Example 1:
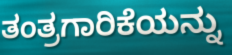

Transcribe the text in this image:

ತಂತ್ರಗಾರಿಕೆಯನ್ನು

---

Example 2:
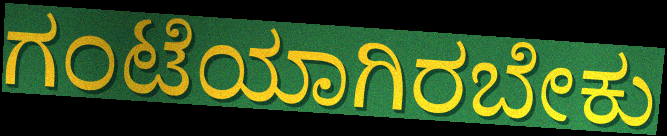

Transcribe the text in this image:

ಗಂಟೆಯಾಗಿರಬೇಕು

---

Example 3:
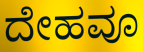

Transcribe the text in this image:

ದೇಹವೂ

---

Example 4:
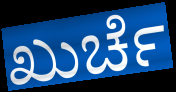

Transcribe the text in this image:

ಖುರ್ಚೆ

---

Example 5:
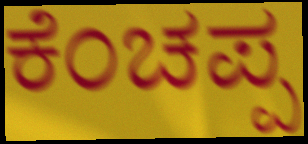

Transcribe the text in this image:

ಕೆಂಚಪ್ಪ